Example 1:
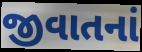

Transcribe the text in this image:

જીવાતનાં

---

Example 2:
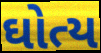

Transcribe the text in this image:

ઘોત્ય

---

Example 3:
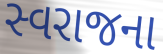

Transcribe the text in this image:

સ્વરાજના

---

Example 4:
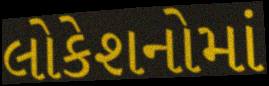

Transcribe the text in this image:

લોકેશનોમાં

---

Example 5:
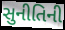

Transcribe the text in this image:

સુનીતિની